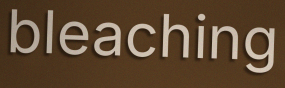
bleaching